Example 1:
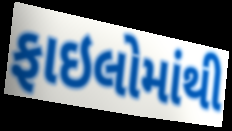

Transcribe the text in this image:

ફાઇલોમાંથી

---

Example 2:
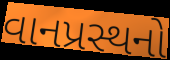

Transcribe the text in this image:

વાનપ્રસ્થનો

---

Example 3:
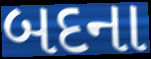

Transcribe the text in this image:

બદના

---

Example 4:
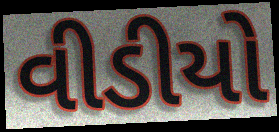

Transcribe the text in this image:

વીડીયો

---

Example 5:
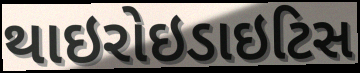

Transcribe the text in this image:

થાઇરોઇડાઇટિસ